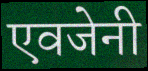
एवजेनी